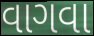
વાગવા